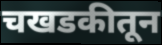
चखडकीतून